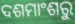
ଦଶମାଂଶରୁ